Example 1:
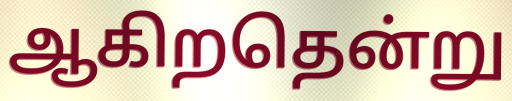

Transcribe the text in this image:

ஆகிறதென்று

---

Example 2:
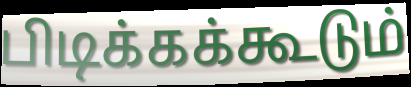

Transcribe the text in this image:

பிடிக்கக்கூடும்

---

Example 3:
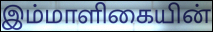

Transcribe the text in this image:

இம்மாளிகையின்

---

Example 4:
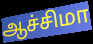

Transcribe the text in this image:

ஆச்சிமா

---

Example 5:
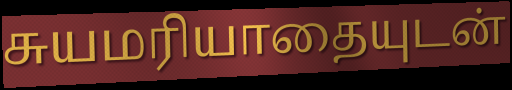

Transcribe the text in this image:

சுயமரியாதையுடன்